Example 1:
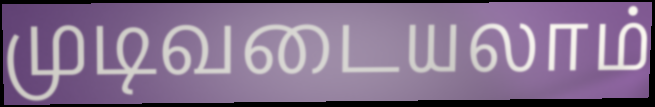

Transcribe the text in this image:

முடிவடையலாம்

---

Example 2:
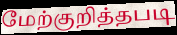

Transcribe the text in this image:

மேற்குறித்தபடி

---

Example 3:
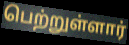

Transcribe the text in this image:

பெற்றுள்ளார்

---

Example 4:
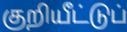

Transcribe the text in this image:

குறியீட்டுப்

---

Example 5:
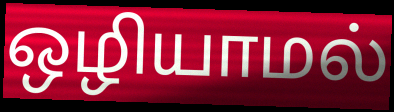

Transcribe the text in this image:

ஒழியாமல்